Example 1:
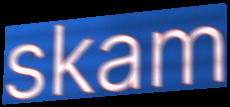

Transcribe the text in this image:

skam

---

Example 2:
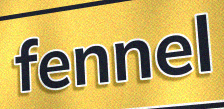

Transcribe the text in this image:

fennel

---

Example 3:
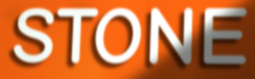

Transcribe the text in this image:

STONE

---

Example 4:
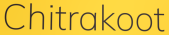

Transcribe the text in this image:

Chitrakoot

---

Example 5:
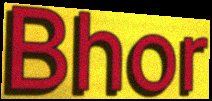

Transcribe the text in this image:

Bhor